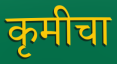
कृमीचा